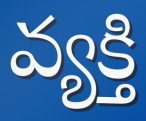
వ్యక్తి